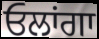
ਓਲਾਂਗਾ